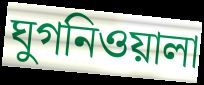
ঘুগনিওয়ালা